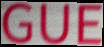
GUE